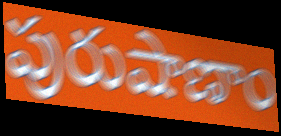
పురుషాణాం